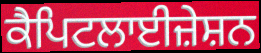
ਕੈਪਿਟਲਾਈਜ਼ੇਸ਼ਨ